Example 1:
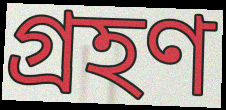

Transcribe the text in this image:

গ্রহণ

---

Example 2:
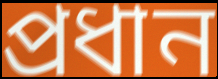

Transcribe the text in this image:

প্রধান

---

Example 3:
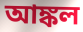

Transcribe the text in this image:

আঙ্কল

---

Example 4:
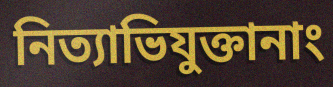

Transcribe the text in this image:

নিত্যাভিযুক্তানাং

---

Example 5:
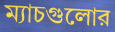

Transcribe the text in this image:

ম্যাচগুলোর